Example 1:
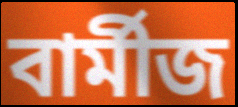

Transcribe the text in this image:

বাৰ্মীজ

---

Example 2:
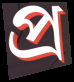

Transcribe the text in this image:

প্ৰ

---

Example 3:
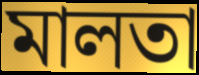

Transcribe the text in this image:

মালতা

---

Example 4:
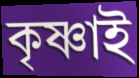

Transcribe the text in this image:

কৃষ্ণাই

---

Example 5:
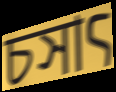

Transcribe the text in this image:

চসাৎ